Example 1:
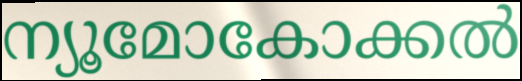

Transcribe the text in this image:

ന്യൂമോകോക്കൽ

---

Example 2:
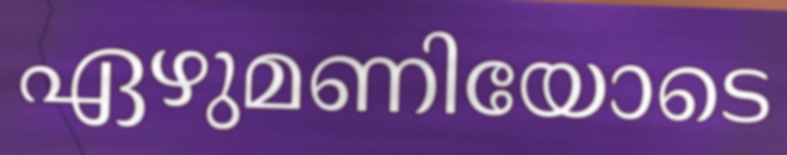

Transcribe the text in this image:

ഏഴുമണിയോടെ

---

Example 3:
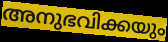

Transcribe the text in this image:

അനുഭവിക്കയും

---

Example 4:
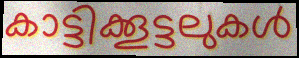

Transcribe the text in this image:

കാട്ടിക്കൂട്ടലുകൾ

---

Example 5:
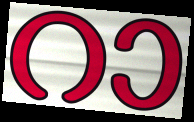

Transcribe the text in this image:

റാ